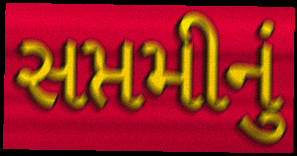
સપ્તમીનું